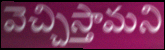
వెచ్చిస్తామని